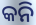
କନି